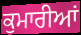
ਕੁਮਾਰੀਆਂ